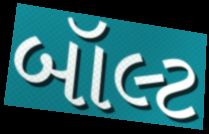
બૉલ્ટ